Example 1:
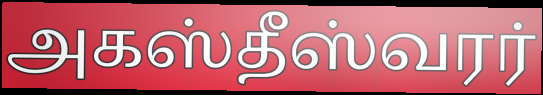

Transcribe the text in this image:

அகஸ்தீஸ்வரர்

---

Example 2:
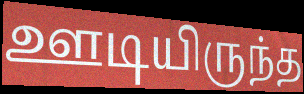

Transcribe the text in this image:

ஊடியிருந்த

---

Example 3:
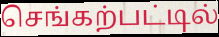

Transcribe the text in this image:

செங்கற்பட்டில்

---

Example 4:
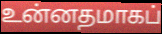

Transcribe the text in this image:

உன்னதமாகப்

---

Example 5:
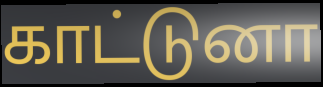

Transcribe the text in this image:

காட்டுனா